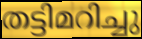
തട്ടിമറിച്ചു